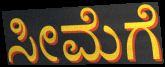
ಸೀಮೆಗೆ